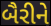
બૈરીને